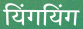
यिंगयिंग